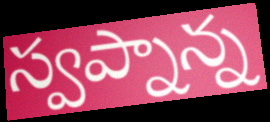
స్వప్నాన్న